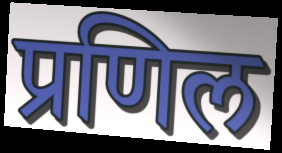
प्रणिल